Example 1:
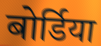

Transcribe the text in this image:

बोर्डिया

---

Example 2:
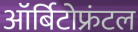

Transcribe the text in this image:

ऑर्बिटोफ्रंटल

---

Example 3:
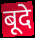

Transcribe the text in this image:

बूदे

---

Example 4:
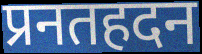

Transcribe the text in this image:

प्रनतहदन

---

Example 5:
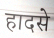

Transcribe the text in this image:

हादसे